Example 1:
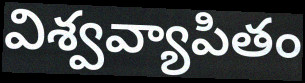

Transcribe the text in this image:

విశ్వవ్యాపితం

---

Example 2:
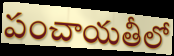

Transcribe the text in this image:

పంచాయతీలో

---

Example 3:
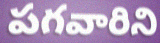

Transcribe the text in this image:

పగవారిని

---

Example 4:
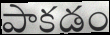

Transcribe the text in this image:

పాకడం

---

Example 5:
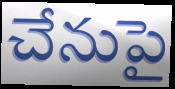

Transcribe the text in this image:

చేనుపై